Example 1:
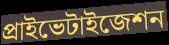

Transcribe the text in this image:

প্রাইভেটাইজেশন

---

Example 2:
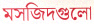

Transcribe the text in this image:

মসজিদগুলো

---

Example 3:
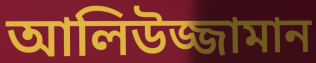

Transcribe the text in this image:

আলিউজ্জামান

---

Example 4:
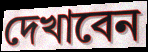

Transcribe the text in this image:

দেখাবেন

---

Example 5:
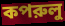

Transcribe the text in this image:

কপরুলু